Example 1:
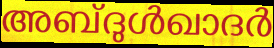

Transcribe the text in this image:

അബ്ദുൾഖാദർ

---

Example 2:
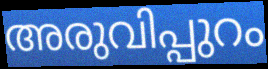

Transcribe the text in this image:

അരുവിപ്പുറം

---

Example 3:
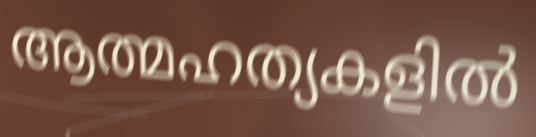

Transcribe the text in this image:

ആത്മഹത്യകളിൽ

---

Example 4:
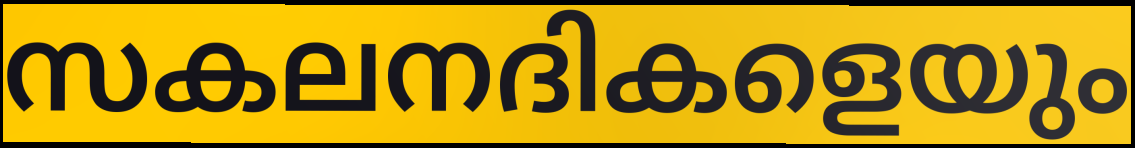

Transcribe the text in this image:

സകലനദികളെയും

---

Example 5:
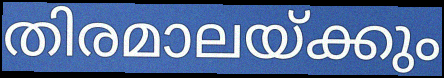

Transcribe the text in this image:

തിരമാലയ്ക്കും